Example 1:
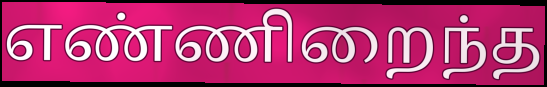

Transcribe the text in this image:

எண்ணிறைந்த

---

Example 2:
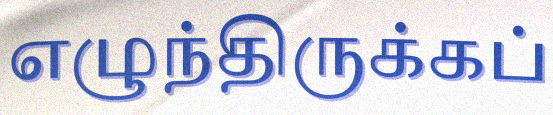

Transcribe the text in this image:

எழுந்திருக்கப்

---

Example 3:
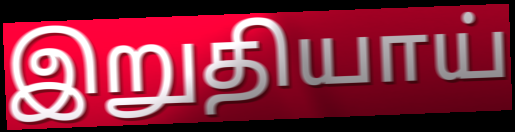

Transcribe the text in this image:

இறுதியாய்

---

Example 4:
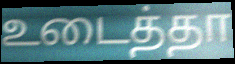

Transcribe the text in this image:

உடைத்தா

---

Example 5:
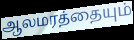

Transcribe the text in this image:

ஆலமரத்தையும்